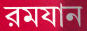
রমযান